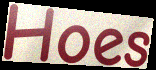
Hoes